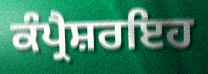
ਕੰਪ੍ਰੈਸ਼ਰਇਹ